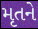
મૃતને